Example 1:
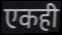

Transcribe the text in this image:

एकही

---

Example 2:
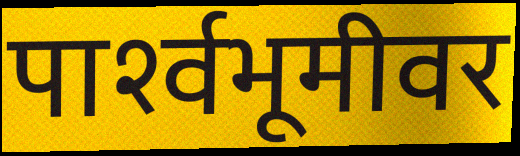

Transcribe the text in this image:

पार्श्वभूमीवर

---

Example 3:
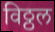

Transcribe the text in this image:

विठ्ठल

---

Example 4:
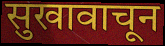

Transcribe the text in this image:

सुखावाचून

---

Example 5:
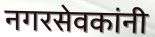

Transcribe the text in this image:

नगरसेवकांनी